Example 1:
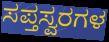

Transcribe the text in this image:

ಸಪ್ತಸ್ವರಗಳ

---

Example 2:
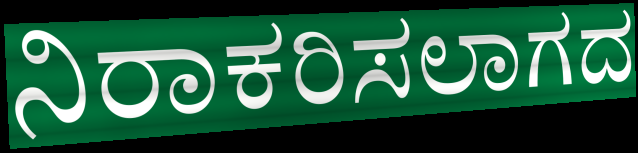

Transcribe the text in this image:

ನಿರಾಕರಿಸಲಾಗದ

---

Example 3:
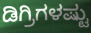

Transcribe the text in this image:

ಡಿಗ್ರಿಗಳಷ್ಟು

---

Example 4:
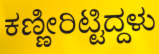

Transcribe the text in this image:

ಕಣ್ಣೀರಿಟ್ಟಿದ್ದಳು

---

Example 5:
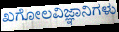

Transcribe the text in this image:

ಖಗೋಲವಿಜ್ಞಾನಿಗಳು